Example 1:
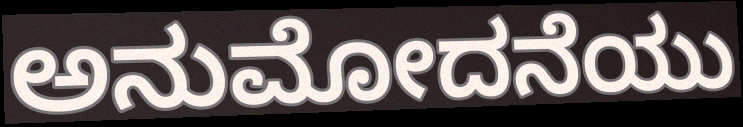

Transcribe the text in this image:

ಅನುಮೋದನೆಯು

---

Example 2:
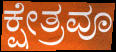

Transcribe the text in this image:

ಕ್ಷೇತ್ರವೂ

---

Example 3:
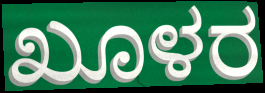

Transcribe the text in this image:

ಖೂಳರ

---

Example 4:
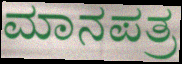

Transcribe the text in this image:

ಮಾನಪತ್ರ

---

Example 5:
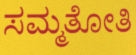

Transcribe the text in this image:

ಸಮ್ಮತೋತಿ